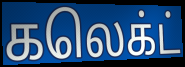
கலெக்ட்